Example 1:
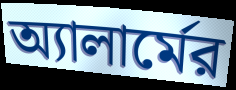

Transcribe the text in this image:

অ্যালার্মের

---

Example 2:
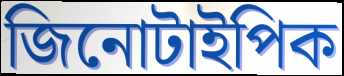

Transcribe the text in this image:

জিনোটাইপিক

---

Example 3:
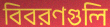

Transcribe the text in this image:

বিবরণগুলি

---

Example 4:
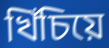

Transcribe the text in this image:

খিঁচিয়ে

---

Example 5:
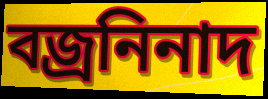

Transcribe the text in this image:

বজ্রনিনাদ